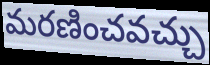
మరణించవచ్చు